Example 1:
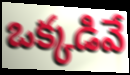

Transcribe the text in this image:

ఒక్కడివే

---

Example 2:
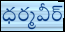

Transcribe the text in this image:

ధర్మవీర్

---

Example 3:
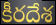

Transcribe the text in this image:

కీరదేశ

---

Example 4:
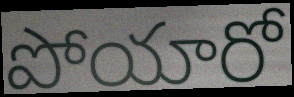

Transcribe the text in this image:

పోయారో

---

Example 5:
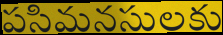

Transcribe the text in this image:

పసిమనసులకు